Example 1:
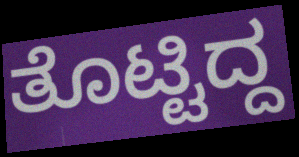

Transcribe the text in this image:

ತೊಟ್ಟಿದ್ದ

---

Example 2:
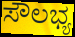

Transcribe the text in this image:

ಸೌಲಭ್ಯ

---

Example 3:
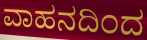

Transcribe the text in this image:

ವಾಹನದಿಂದ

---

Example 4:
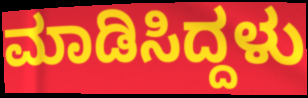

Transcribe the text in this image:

ಮಾಡಿಸಿದ್ದಳು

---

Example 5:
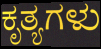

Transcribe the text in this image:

ಕೃತ್ಯಗಳು